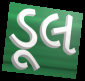
ડૂલ